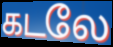
கடலே